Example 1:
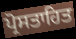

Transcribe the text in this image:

ਪ੍ਰੋਸਤਾਹਿਤ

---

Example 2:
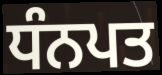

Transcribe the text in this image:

ਧੰਨਪਤ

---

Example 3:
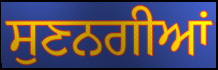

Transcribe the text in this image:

ਸੁਣਨਗੀਆਂ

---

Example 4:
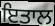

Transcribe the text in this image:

ਇਤਾਲ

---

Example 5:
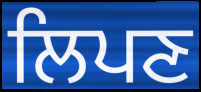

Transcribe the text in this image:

ਲਿਪਣ